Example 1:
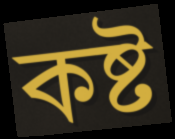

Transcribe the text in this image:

কষ্ট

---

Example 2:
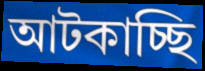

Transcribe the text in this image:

আটকাচ্ছি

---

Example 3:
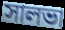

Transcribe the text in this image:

সালভা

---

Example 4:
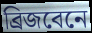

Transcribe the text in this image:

ব্রিজবেনে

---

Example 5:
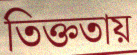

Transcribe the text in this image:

তিক্ততায়